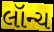
લૉન્ચ